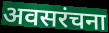
अवसरंचना